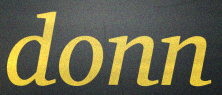
donn